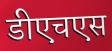
डीएचएस